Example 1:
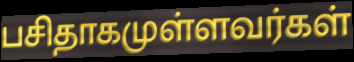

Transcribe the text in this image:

பசிதாகமுள்ளவர்கள்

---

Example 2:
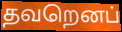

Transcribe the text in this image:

தவறெனப்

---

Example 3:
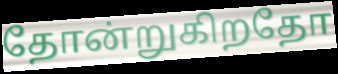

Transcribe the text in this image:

தோன்றுகிறதோ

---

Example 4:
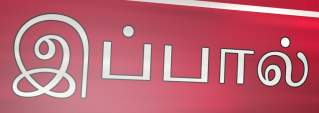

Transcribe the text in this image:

இப்பால்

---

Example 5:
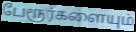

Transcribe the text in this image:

பேரூர்களையும்